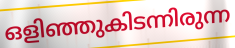
ഒളിഞ്ഞുകിടന്നിരുന്ന